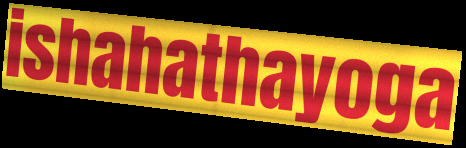
ishahathayoga